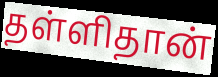
தள்ளிதான்